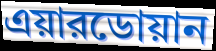
এয়ারডোয়ান